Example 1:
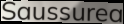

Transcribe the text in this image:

Saussurea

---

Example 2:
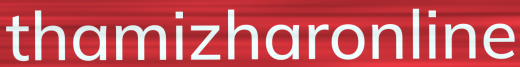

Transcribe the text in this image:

thamizharonline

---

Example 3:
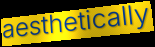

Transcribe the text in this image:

aesthetically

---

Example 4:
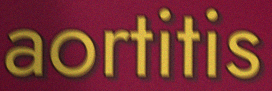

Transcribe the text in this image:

aortitis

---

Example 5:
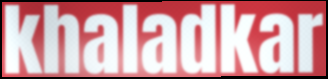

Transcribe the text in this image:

khaladkar